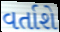
વર્તાશે